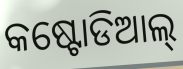
କଷ୍ଟୋଡିଆଲ୍